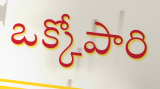
ఒక్కోపారి